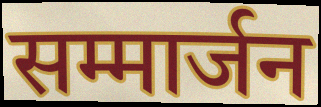
सम्मार्जन